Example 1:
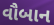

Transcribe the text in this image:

વૌબાન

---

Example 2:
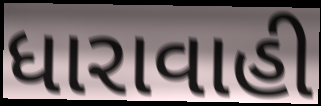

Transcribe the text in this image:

ધારાવાહી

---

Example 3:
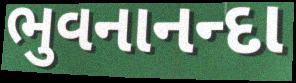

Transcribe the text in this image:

ભુવનાનન્દા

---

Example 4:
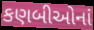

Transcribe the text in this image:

કણબીઓનાં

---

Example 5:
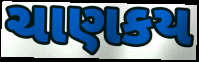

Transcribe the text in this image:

ચાણકય